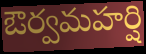
ఔర్వమహర్షి